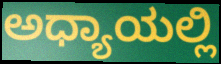
ಅಧ್ಯಾಯಲ್ಲಿ